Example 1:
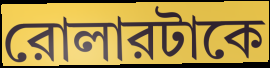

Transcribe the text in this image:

রোলারটাকে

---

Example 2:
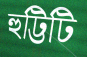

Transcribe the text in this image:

হুট্টিটি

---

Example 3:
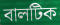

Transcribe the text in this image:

বালটিক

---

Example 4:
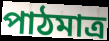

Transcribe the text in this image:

পাঠমাত্র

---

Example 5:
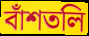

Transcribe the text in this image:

বাঁশতলি